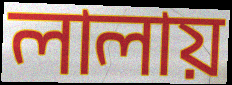
লালায়